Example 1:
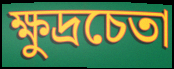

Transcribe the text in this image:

ক্ষুদ্রচেতা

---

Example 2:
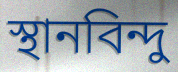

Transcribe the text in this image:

স্থানবিন্দু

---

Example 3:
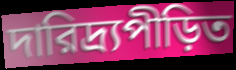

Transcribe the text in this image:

দারিদ্র্যপীড়িত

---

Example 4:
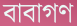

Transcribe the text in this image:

বাবাগণ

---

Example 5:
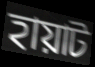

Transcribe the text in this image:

হায়াট